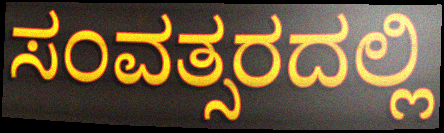
ಸಂವತ್ಸರದಲ್ಲಿ